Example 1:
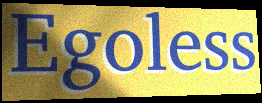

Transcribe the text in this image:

Egoless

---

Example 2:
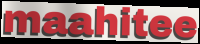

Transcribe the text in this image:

maahitee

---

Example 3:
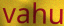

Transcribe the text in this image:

vahu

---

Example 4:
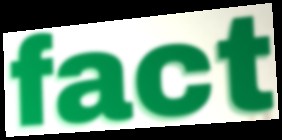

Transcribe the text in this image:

fact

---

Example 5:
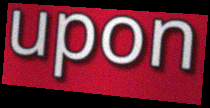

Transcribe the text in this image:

upon